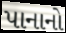
પાનાનો